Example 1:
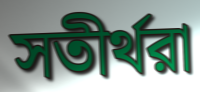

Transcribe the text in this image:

সতীর্থরা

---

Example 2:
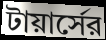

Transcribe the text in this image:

টায়ার্সের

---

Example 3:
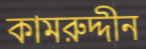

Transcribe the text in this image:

কামরুদ্দীন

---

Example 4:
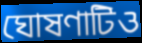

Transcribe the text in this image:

ঘোষণাটিও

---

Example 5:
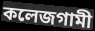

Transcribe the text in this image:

কলেজগামী